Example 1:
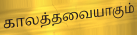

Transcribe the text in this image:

காலத்தவையாகும்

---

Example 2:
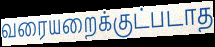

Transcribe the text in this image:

வரையறைக்குட்படாத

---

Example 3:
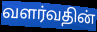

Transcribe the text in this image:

வளர்வதின்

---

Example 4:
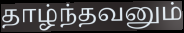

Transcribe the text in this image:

தாழ்ந்தவனும்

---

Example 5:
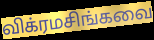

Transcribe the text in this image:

விக்ரமசிங்கவை